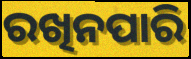
ରଖିନପାରି